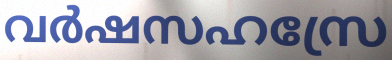
വർഷസഹസ്രേ